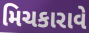
મિચકારાવે